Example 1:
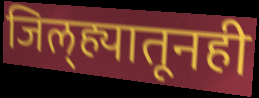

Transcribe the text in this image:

जिल्ह्यातूनही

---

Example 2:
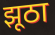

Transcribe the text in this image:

झूठा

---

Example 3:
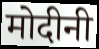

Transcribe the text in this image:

मोदीनी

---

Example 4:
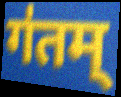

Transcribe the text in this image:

ग॑तम्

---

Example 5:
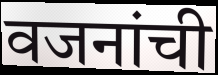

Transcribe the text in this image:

वजनांची